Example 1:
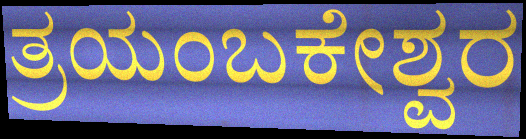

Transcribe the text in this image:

ತ್ರಯಂಬಕೇಶ್ವರ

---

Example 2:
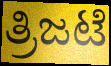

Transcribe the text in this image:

ತ್ರಿಜಟೆ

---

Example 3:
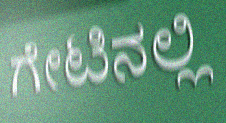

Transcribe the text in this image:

ಗೇಟಿನಲ್ಲಿ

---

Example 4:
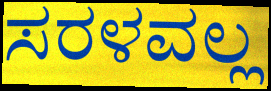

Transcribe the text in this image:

ಸರಳವಲ್ಲ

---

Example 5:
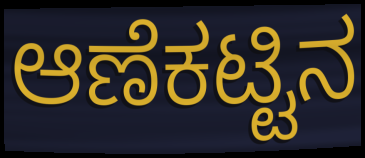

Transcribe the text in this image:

ಆಣೆಕಟ್ಟಿನ